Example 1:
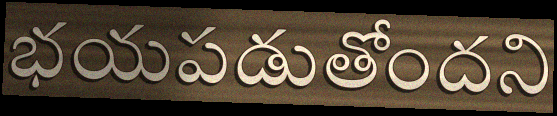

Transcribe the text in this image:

భయపడుతోందని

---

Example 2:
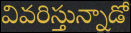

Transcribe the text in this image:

వివరిస్తున్నాడో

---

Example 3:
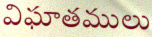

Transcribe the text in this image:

విఘాతములు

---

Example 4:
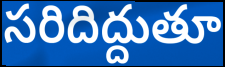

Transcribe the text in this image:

సరిదిద్దుతూ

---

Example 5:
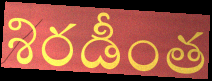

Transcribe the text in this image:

శిరడీంత